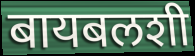
बायबलशी